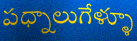
పధ్నాలుగేళ్ళూ